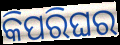
କିପରିଘର